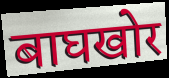
बाघखोर